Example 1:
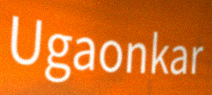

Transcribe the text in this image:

Ugaonkar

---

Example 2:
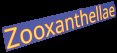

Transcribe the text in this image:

Zooxanthellae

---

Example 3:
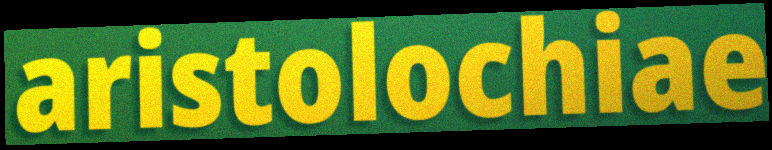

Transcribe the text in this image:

aristolochiae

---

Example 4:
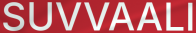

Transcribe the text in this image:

SUVVAALI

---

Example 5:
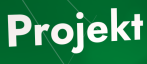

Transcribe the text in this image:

Projekt